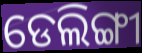
ଡେଲିଙ୍ଗୀ